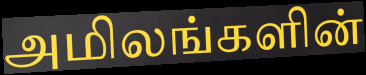
அமிலங்களின்